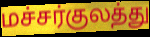
மச்சர்குலத்து